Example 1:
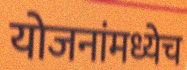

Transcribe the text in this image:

योजनांमध्येच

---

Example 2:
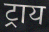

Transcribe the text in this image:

ट्राय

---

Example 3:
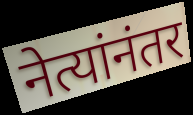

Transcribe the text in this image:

नेत्यांनंतर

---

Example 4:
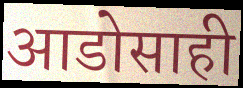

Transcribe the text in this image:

आडोसाही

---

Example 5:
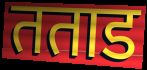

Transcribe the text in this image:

तताड